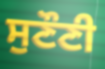
ਸੁਣੌਣੀ